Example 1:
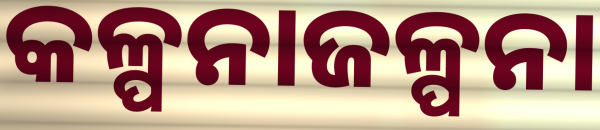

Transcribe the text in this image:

କଳ୍ପନାଜଳ୍ପନା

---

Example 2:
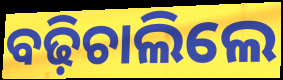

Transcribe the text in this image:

ବଢ଼ିଚାଲିଲେ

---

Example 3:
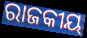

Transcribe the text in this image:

ରାଜକୀୟ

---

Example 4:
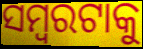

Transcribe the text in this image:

ସମ୍ବରଟାକୁ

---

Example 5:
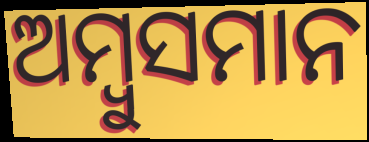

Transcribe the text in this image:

ଅମ୍ବୁସମାନ